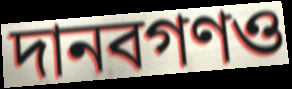
দানবগণও